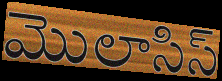
మొలాసిస్